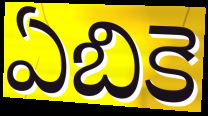
ఏబికె